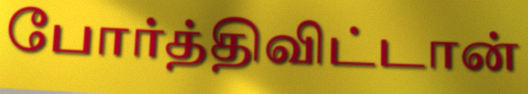
போர்த்திவிட்டான்